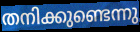
തനിക്കുണ്ടെന്നു